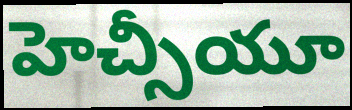
హెచ్సీయూ